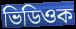
ভিডিওক